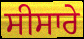
ਸੀਸਾਰੇ